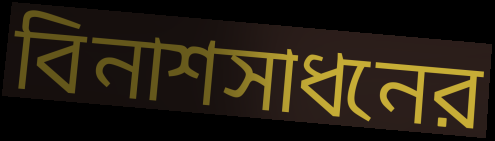
বিনাশসাধনের